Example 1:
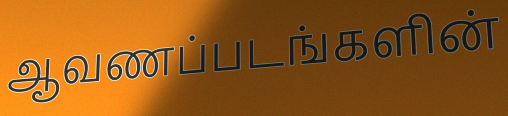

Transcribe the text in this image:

ஆவணப்படங்களின்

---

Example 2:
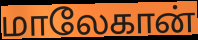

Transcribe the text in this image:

மாலேகான்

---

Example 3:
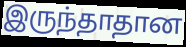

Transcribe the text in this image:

இருந்தாதான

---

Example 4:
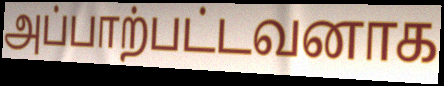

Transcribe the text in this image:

அப்பாற்பட்டவனாக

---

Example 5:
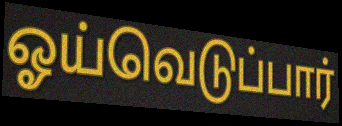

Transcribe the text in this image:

ஓய்வெடுப்பார்